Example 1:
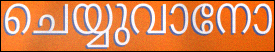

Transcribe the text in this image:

ചെയ്യുവാനോ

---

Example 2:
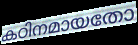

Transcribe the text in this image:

കഠിനമായതോ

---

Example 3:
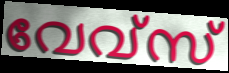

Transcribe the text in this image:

വേവ്സ്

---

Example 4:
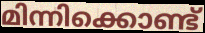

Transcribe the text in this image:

മിന്നിക്കൊണ്ട്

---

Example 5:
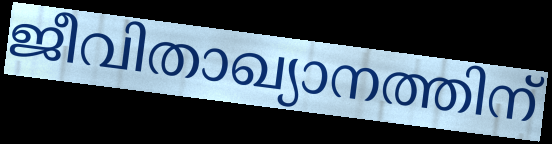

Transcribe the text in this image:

ജീവിതാഖ്യാനത്തിന്